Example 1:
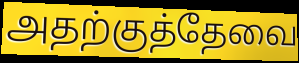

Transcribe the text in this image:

அதற்குத்தேவை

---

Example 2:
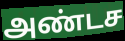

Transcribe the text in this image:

அண்டச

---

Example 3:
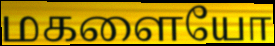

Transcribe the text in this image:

மகளையோ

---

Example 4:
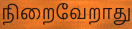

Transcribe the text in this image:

நிறைவேறாது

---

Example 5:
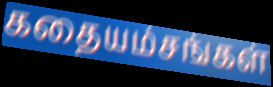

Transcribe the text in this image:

கதையம்சங்கள்